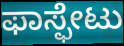
ಫಾಸ್ಫೇಟು